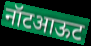
नॉटआऊट